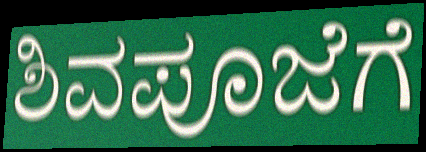
ಶಿವಪೂಜೆಗೆ